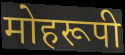
मोहरूपी